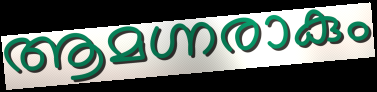
ആമഗ്നരാകും